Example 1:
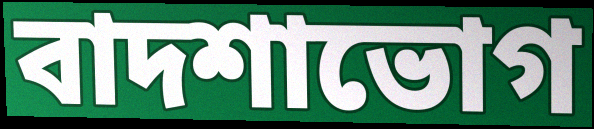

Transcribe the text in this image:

বাদশাভোগ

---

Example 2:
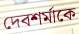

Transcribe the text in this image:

দেবশর্মাকে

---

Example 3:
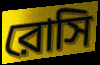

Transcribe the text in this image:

রোসি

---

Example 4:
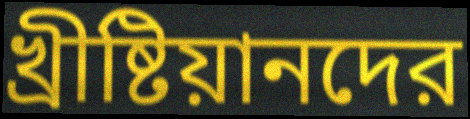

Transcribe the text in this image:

খ্রীষ্টিয়ানদের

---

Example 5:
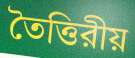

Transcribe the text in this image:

তৈত্তিরীয়